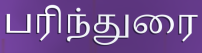
பரிந்துரை